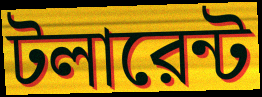
টলারেন্ট